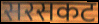
सरसकट